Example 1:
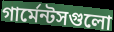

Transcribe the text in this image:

গার্মেন্টসগুলো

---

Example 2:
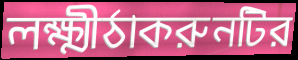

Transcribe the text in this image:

লক্ষ্মীঠাকরুনটির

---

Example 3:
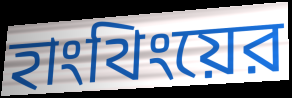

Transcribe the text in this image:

হাংথিংয়ের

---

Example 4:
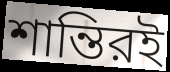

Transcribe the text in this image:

শান্তিরই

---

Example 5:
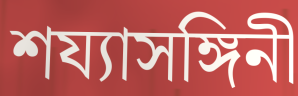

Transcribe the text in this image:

শয্যাসঙ্গিনী